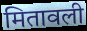
मितावली